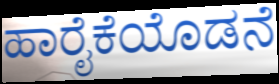
ಹಾರೈಕೆಯೊಡನೆ